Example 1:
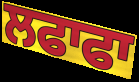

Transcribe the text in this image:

ਲਫਾਫਾ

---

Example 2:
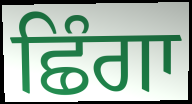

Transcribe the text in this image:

ਛਿੰਗਾ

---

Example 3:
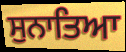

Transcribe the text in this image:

ਸੁਨਾਤਿਆ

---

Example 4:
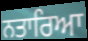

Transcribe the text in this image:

ਨਤਾਰਿਆ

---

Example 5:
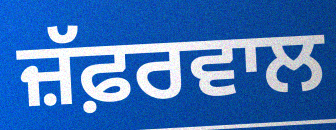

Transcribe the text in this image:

ਜ਼ੱਫ਼ਰਵਾਲ